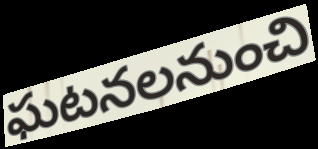
ఘటనలనుంచి